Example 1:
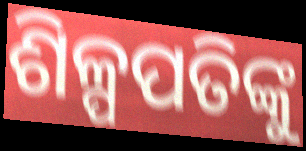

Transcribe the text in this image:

ଶିଳ୍ପପତିଙ୍କୁ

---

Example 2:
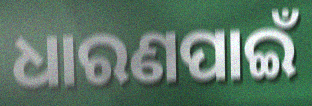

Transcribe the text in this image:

ଧାରଣପାଇଁ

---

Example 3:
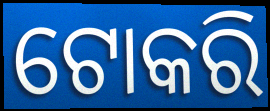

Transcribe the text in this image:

ଟୋକରି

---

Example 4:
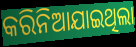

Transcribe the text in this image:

କରିନିଆଯାଇଥିଲା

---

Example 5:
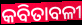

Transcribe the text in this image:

କବିତାବଳୀ